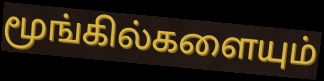
மூங்கில்களையும்